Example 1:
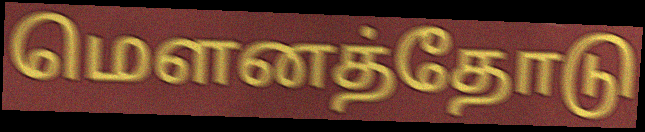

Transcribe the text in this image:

மௌனத்தோடு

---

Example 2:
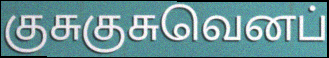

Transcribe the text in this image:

குசுகுசுவெனப்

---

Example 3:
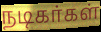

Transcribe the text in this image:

நடிகர்கள்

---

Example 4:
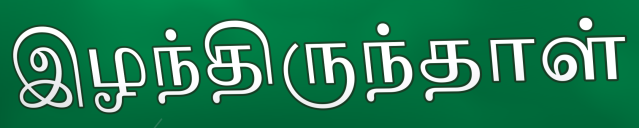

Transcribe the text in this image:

இழந்திருந்தாள்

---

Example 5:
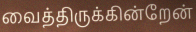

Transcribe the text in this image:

வைத்திருக்கின்றேன்